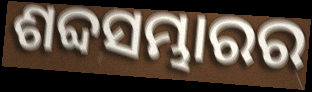
ଶବ୍ଦସମ୍ଭାରର